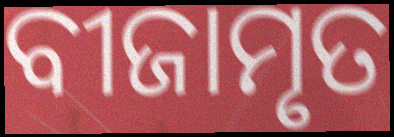
ବୀଜାମୃତ